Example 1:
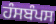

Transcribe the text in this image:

ਹੰਸਬੰਪਸ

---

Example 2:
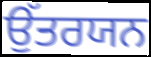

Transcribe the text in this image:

ਉੱਤਰਯਨ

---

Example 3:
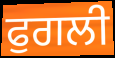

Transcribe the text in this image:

ਫੁਗਲੀ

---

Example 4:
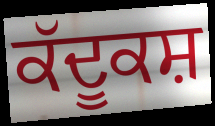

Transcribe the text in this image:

ਕੱਦੂਕਸ਼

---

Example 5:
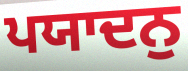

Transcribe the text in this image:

ਪਯਾਦਨੁ